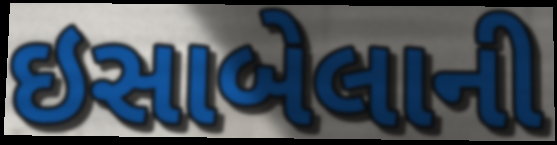
ઇસાબેલાની